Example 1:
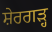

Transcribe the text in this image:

ਸ਼ੇਰਗੜ੍ਹ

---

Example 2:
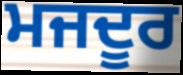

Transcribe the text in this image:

ਮਜਦੂਰ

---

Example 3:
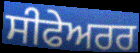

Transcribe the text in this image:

ਸੀਫੇਅਰਰ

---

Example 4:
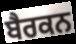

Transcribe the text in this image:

ਬੈਰਕਨ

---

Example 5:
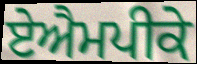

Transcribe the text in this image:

ਏਐਮਪੀਕੇ